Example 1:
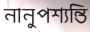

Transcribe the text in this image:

নানুপশ্যন্তি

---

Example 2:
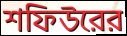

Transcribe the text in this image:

শফিউরের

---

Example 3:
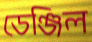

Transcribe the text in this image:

ডেঞ্জিল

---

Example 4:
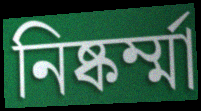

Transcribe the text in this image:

নিষ্কর্ম্মা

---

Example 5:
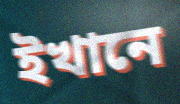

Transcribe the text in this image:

ইখানে